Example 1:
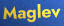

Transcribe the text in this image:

Maglev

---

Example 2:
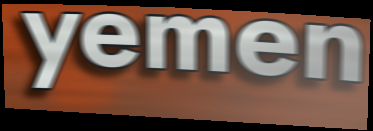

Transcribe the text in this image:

yemen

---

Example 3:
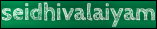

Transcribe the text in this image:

seidhivalaiyam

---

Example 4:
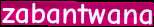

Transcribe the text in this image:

zabantwana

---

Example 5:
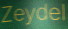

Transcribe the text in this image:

Zeydel